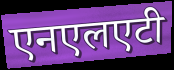
एनएलएटी